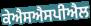
ਕੇਐਸਐਸਪੀਐਲ